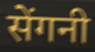
सेंगनी